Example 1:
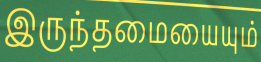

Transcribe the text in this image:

இருந்தமையையும்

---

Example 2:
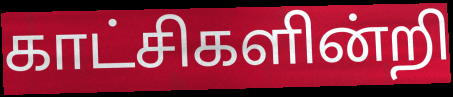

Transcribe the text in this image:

காட்சிகளின்றி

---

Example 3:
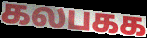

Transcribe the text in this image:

கலபகக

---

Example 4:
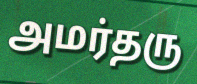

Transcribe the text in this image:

அமர்தரு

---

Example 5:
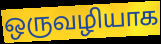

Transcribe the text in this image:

ஒருவழியாக